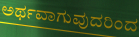
ಅರ್ಥವಾಗುವುದರಿಂದ